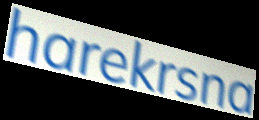
harekrsna